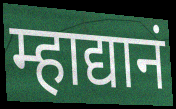
म्हाद्यानं